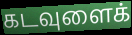
கடவுளைக்